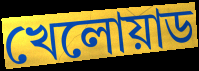
খেলোয়াড